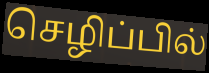
செழிப்பில்